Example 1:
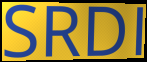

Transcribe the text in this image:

SRDI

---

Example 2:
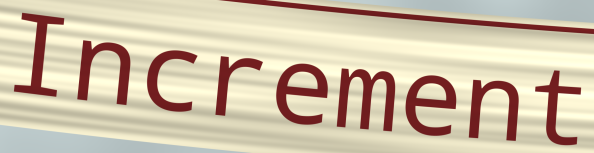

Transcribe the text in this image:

Increment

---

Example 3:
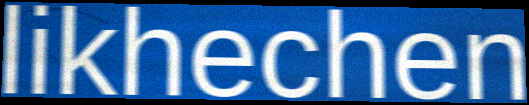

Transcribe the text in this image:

likhechen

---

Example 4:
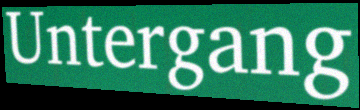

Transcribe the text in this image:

Untergang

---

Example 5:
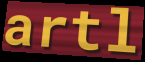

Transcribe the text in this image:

artl